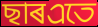
ছাৰএতে